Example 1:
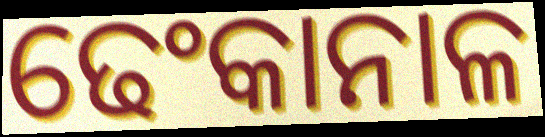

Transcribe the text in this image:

ଢେଂକାନାଳ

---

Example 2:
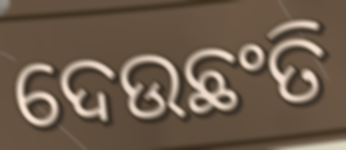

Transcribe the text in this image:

ଦେଉଛଂତି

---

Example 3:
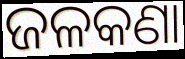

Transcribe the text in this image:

ଜଳକଣା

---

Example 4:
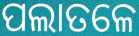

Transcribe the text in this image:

ପଲାତଳେ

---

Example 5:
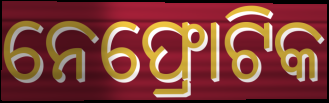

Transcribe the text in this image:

ନେଫ୍ରୋଟିକ